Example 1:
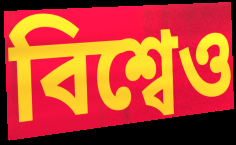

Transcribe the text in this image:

বিশ্বেও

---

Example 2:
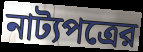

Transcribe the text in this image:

নাট্যপত্রের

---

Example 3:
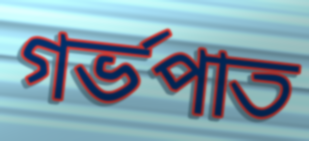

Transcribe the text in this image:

গর্ভপাত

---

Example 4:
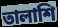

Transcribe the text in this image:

তালাশি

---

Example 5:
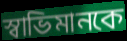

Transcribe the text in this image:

স্বাভিমানকে